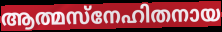
ആത്മസ്നേഹിതനായ